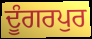
ਦੂੰਗਰਪੁਰ